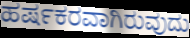
ಹರ್ಷಕರವಾಗಿರುವುದು